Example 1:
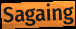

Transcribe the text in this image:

Sagaing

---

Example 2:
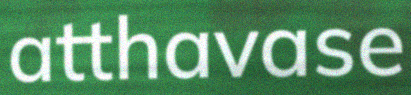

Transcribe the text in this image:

atthavase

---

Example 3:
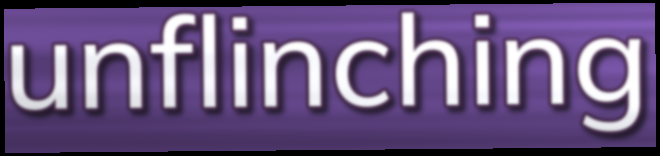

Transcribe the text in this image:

unflinching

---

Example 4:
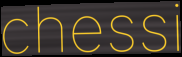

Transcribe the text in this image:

chessi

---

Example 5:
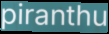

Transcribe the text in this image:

piranthu